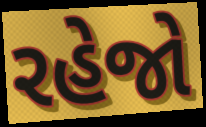
રહેજો